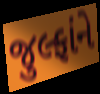
જુલ્ફાંને